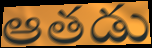
ఆతడు